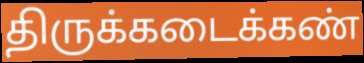
திருக்கடைக்கண்